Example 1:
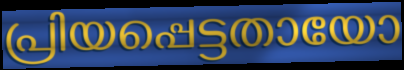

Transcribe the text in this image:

പ്രിയപ്പെട്ടതായോ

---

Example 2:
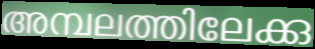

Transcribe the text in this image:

അമ്പലത്തിലേക്കു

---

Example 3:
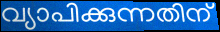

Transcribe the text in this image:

വ്യാപിക്കുന്നതിന്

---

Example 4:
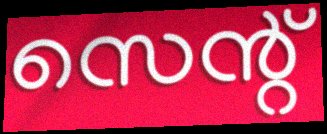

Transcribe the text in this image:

സെന്റ്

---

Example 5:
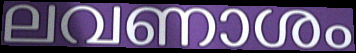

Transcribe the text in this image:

ലവണാശം